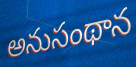
అనుసంథాన